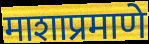
माशाप्रमाणे